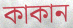
কাকান